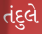
તંદુલે